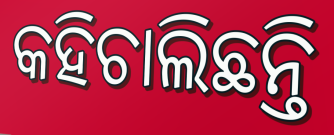
କହିଚାଲିଛନ୍ତି